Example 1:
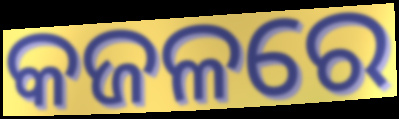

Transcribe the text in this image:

କଜଳରେ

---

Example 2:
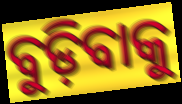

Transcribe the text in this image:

ବୁଡ଼ିବାକୁ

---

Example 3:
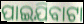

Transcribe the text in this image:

ପାଇଯିବାଟା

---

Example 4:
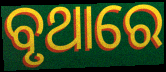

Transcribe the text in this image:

ବୃଥାରେ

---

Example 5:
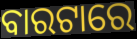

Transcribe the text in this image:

ବାରଟାରେ